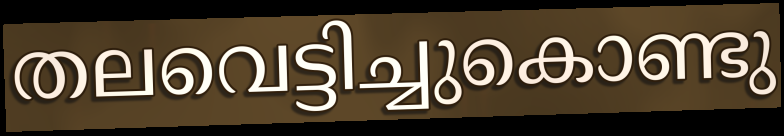
തലവെട്ടിച്ചുകൊണ്ടു